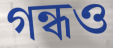
গন্ধও